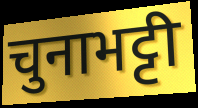
चुनाभट्टी